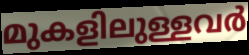
മുകളിലുള്ളവർ